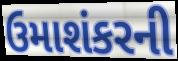
ઉમાશંકરની